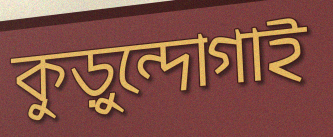
কুড়ুন্দোগাই